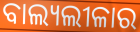
ବାଲ୍ୟଲୀଳାର